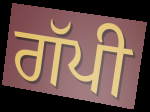
ਗੱਪੀ